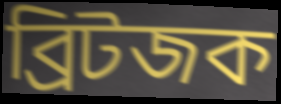
ব্রিটজক